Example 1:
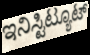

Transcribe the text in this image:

ಇನಿಸ್ಟಿಟ್ಯೂಟ್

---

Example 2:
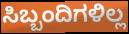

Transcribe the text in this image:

ಸಿಬ್ಬಂದಿಗಳಿಲ್ಲ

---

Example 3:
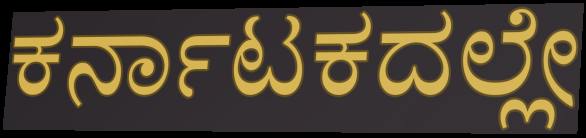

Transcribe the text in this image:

ಕರ್ನಾಟಕದಲ್ಲೇ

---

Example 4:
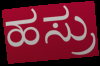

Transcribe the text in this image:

ಹಸ್ರು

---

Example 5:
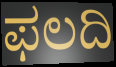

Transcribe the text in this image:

ಫಲದಿ